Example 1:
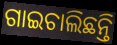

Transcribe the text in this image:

ଗାଇଚାଲିଛନ୍ତି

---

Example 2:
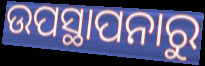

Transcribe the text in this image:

ଉପସ୍ଥାପନାରୁ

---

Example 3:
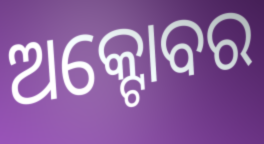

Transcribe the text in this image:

ଅକ୍ଟୋବର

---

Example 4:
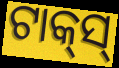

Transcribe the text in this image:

ଟାକ୍‍ସ୍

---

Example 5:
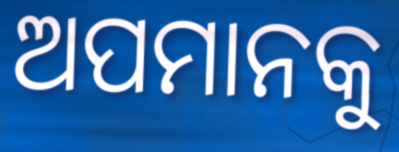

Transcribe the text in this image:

ଅପମାନକୁ